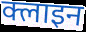
क्लाइन